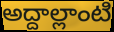
అద్దాల్లాంటి